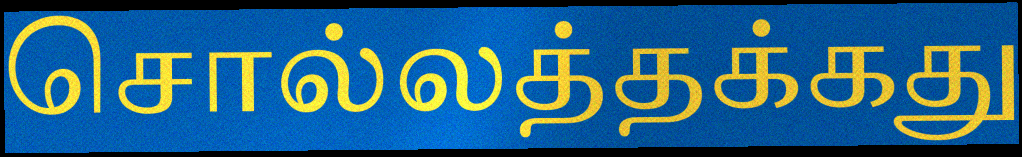
சொல்லத்தக்கது